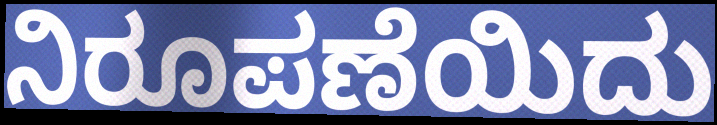
ನಿರೂಪಣೆಯಿದು